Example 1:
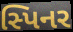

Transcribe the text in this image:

સ્પિનર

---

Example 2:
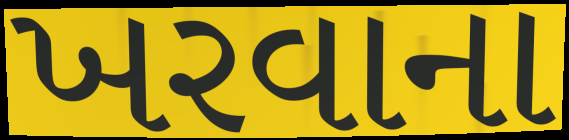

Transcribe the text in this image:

ખરવાના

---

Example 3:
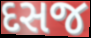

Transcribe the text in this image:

દસજ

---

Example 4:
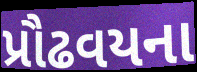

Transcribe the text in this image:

પ્રૌઢવયના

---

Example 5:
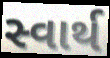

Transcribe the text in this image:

સ્વાર્થ